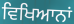
ਵਿਖਿਆਨਾਂ